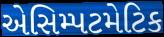
એસિમ્પટમેટિક